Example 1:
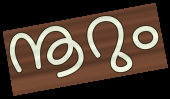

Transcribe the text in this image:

നൂറും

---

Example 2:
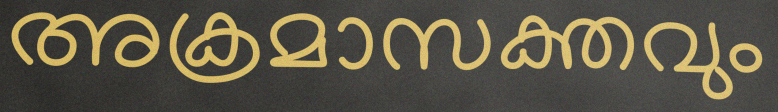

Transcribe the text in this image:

അക്രമാസക്തവും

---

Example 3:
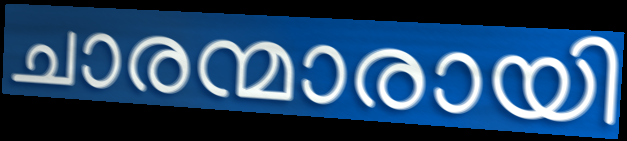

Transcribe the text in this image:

ചാരന്മാരായി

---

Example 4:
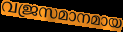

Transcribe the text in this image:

വജ്രസമാനമായ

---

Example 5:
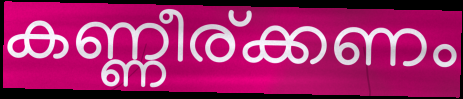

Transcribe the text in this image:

കണ്ണീര്ക്കണം